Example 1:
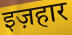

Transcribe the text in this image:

इज़हार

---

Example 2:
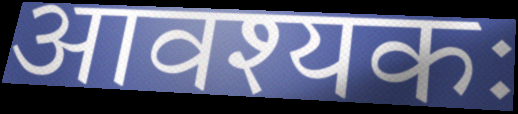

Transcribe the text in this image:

आवश्यकः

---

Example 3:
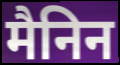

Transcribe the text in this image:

मैनिन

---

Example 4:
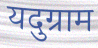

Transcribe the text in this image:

यदुग्राम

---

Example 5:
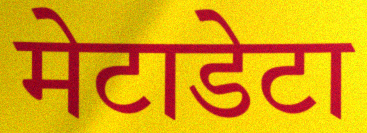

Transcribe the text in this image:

मेटाडेटा